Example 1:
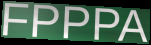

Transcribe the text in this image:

FPPPA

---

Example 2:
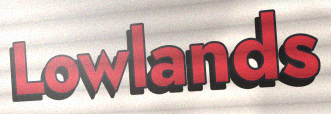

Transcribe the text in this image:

Lowlands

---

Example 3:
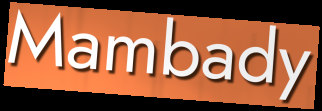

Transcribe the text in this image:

Mambady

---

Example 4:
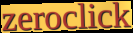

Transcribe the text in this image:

zeroclick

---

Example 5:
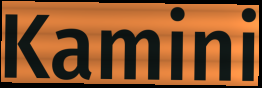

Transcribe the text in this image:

Kamini